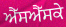
ਐੱਸਐੱਸਕੇ